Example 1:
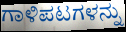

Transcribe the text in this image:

ಗಾಳಿಪಟಗಳನ್ನು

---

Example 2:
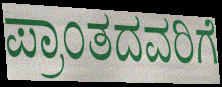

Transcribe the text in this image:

ಪ್ರಾಂತದವರಿಗೆ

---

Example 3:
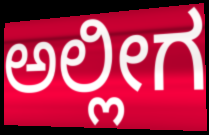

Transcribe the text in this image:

ಅಲ್ಲೀಗ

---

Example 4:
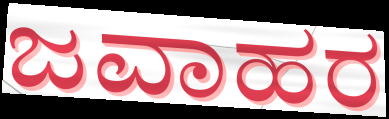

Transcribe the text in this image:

ಜವಾಹರ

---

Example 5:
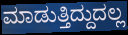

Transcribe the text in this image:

ಮಾಡುತ್ತಿದ್ದುದಲ್ಲ